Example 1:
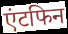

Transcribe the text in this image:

एंटफिन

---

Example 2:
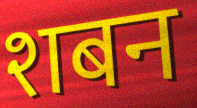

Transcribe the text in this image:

शबन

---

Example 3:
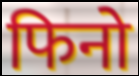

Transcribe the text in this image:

फिनो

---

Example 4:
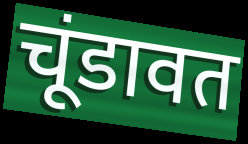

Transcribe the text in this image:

चूंडावत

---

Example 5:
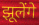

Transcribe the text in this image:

झूलेंगे